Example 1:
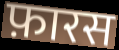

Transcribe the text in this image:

फ़ारस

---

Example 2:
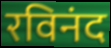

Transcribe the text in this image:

रविनंद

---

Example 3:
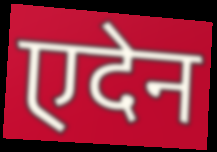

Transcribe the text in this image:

एदेन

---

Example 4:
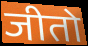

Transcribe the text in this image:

जीतो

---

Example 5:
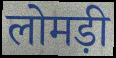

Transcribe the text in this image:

लोमड़ी